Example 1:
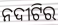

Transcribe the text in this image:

ନଦୀଟିର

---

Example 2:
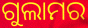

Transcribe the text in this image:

ଗୁଲାମର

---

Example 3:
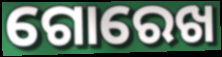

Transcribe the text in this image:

ଗୋରେଖ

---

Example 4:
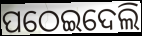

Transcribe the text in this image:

ପଠେଇଦେଲି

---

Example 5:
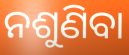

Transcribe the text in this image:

ନଶୁଣିବା